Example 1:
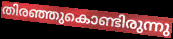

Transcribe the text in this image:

തിരഞ്ഞുകൊണ്ടിരുന്നു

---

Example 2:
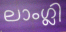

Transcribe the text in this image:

ലാംഗ്ലി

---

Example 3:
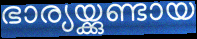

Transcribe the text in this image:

ഭാര്യയ്ക്കുണ്ടായ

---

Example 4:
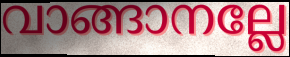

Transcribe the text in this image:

വാങ്ങാനല്ലേ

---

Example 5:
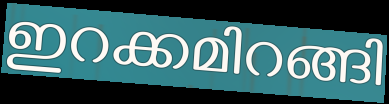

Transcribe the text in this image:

ഇറക്കമിറങ്ങി